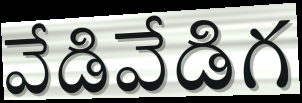
వేడివేడిగ